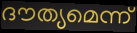
ദൗത്യമെന്ന്